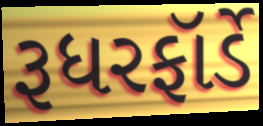
રૂધરફૉર્ડે